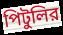
পিটুলির